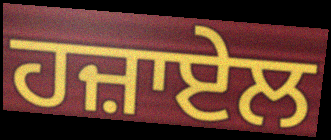
ਹਜ਼ਾਏਲ